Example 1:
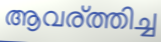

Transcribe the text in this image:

ആവര്ത്തിച്ച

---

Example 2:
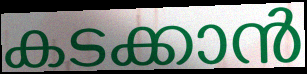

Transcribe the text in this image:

കടക്കാൻ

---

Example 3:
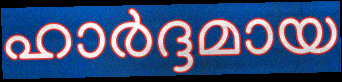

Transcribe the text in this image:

ഹാർദ്ദമായ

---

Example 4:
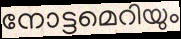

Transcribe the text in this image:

നോട്ടമെറിയും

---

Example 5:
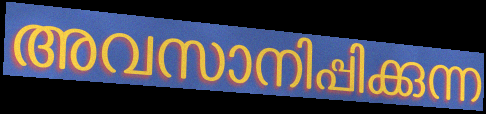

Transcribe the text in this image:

അവസാനിപ്പിക്കുന്ന